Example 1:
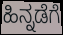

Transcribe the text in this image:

ಹಿನ್ನಡೆಗೆ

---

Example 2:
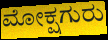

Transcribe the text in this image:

ಮೋಕ್ಷಗುರು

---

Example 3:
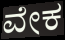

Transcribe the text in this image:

ವೇಕ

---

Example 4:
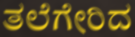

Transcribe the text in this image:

ತಲೆಗೇರಿದ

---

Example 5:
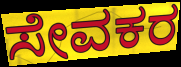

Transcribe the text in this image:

ಸೇವಕರ